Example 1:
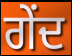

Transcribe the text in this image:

ਗੇਂਦ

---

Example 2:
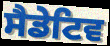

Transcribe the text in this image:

ਸੈਡੇਟਿਵ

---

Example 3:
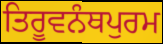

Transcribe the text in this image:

ਤਿਰੂਵਨੰਥਪੁਰਮ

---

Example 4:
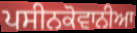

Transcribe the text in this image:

ਪਸੀਨਕੋਵਾਨੀਆ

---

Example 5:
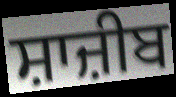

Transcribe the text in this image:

ਸ਼ਾਜ਼ੀਬ